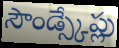
సౌండ్స్కేప్లు